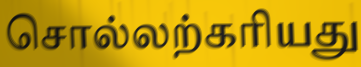
சொல்லற்கரியது